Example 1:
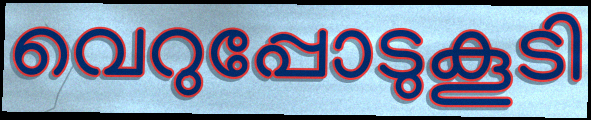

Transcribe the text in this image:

വെറുപ്പോടുകൂടി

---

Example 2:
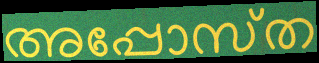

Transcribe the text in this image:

അപ്പോസ്‌ത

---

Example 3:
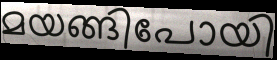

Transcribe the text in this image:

മയങ്ങിപോയി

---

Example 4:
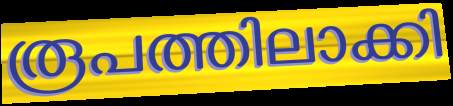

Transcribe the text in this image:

രൂപത്തിലാക്കി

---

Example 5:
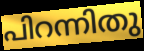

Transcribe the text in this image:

പിറന്നിതു